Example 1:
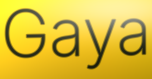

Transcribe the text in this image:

Gaya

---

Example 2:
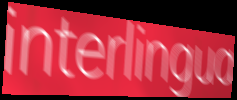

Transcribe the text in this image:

interlingua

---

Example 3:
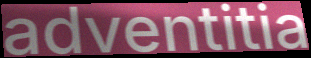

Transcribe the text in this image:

adventitia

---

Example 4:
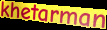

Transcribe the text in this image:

khetarman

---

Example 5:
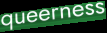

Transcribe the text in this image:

queerness